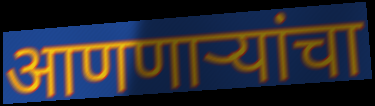
आणणाऱ्यांचा